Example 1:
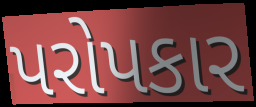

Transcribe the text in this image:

પરોપકાર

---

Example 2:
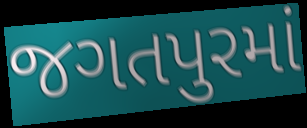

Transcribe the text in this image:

જગતપુરમાં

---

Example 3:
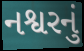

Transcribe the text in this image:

નશ્વરનું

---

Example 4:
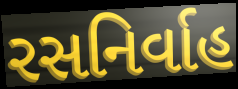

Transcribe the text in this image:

રસનિર્વાહ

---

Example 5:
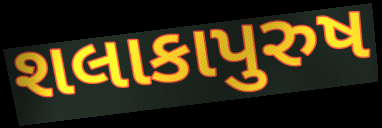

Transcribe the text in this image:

શલાકાપુરુષ